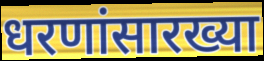
धरणांसारख्या